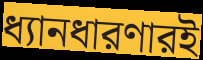
ধ্যানধারণারই